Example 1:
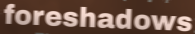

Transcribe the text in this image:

foreshadows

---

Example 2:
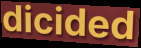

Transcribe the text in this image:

dicided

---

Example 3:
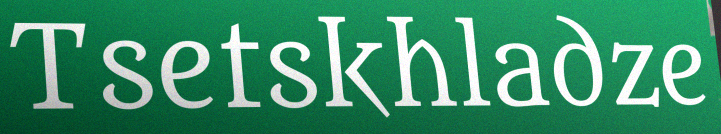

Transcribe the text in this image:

Tsetskhladze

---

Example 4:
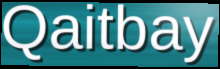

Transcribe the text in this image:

Qaitbay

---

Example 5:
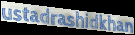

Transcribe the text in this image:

ustadrashidkhan